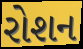
રોશન